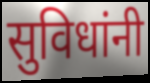
सुविधांनी